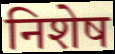
निशेष